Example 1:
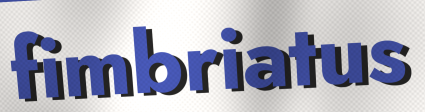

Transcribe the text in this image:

fimbriatus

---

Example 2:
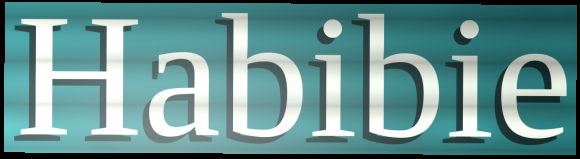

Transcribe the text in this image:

Habibie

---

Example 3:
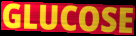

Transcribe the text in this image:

GLUCOSE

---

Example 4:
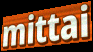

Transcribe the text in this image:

mittai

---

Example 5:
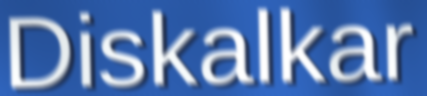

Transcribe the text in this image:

Diskalkar